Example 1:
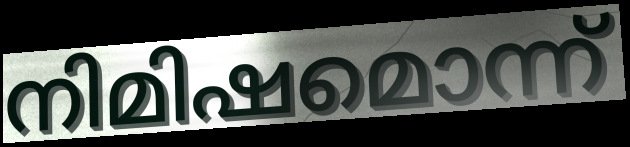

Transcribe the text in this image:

നിമിഷമൊന്ന്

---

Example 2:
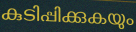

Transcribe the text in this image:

കുടിപ്പിക്കുകയും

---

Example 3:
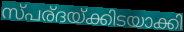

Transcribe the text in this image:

സ്പര്ദയ്ക്കിടയാക്കി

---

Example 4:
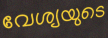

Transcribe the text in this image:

വേശ്യയുടെ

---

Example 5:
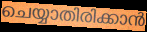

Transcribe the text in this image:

ചെയ്യാതിരിക്കാൻ